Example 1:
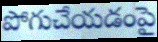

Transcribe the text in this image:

పోగుచేయడంపై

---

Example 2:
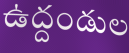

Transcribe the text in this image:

ఉద్దండుల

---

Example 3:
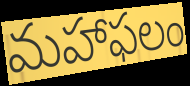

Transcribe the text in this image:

మహాఫలం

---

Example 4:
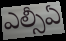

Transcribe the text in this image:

ఎల్సీఏ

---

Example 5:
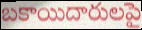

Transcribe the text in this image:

బకాయిదారులపై